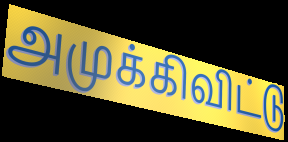
அமுக்கிவிட்டு